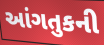
આંગતુકની